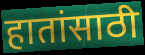
हातांसाठी